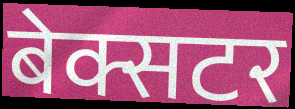
बेक्सटर